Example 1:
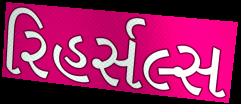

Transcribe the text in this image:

રિહર્સલ્સ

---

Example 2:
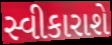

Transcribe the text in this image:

સ્વીકારાશે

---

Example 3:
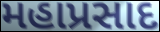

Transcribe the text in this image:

મહાપ્રસાદ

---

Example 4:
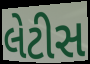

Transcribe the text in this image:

લેટીસ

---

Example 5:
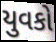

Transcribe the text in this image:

યુવકો